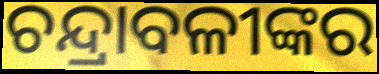
ଚନ୍ଦ୍ରାବଳୀଙ୍କର